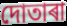
দোতাৰা